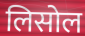
लिसोल